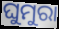
ଘୁମୁରା